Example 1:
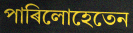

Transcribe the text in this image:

পাৰিলোহেতেন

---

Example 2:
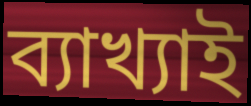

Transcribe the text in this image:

ব্যাখ্যাই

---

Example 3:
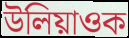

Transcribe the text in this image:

উলিয়াওক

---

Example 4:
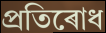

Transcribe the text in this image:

প্ৰতিৰোধ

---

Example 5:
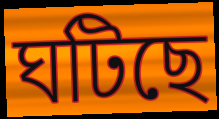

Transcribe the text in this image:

ঘটিছে